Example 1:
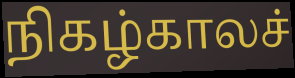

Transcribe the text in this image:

நிகழ்காலச்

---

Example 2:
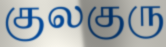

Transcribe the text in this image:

குலகுரு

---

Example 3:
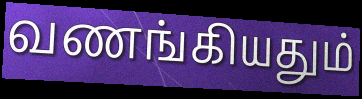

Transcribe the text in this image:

வணங்கியதும்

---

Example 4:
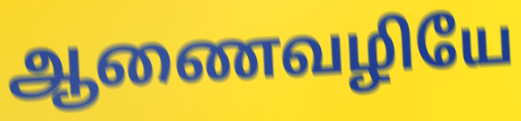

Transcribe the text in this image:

ஆணைவழியே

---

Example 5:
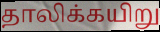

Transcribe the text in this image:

தாலிக்கயிறு